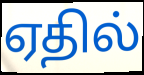
ஏதில்